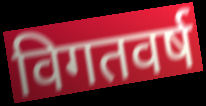
विगतवर्ष